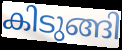
കിടുങ്ങി